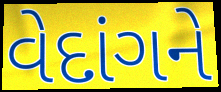
વેદાંગને